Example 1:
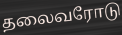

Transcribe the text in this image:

தலைவரோடு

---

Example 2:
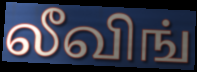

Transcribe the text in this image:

லீவிங்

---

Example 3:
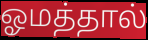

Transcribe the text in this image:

ஓமத்தால்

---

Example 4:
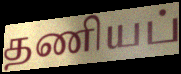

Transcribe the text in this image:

தணியப்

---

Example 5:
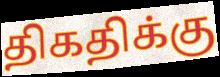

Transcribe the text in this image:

திகதிக்கு